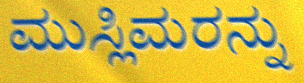
ಮುಸ್ಲಿಮರನ್ನು